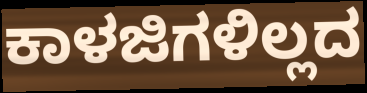
ಕಾಳಜಿಗಳಿಲ್ಲದ